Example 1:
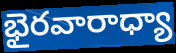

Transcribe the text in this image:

భైరవారాధ్యా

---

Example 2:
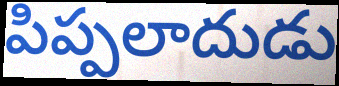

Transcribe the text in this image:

పిప్పలాదుడు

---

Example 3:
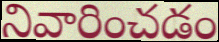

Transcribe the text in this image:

నివారించడం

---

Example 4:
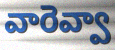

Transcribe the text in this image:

వారెవ్వా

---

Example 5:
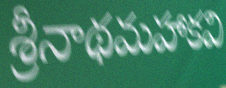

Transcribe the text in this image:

శ్రీనాథమహాకవి